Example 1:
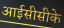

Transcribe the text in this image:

आईसीसीके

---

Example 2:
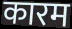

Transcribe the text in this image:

कारम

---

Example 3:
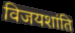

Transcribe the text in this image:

विजयशांति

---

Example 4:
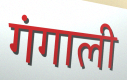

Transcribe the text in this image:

गंगाली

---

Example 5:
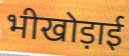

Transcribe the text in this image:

भीखोड़ाई